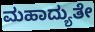
ಮಹಾದ್ಯುತೇ